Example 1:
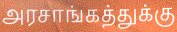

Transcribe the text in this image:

அரசாங்கத்துக்கு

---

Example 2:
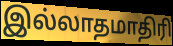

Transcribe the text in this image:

இல்லாதமாதிரி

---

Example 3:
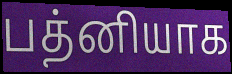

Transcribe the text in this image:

பத்னியாக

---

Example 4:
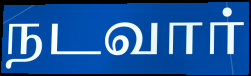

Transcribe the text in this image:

நடவார்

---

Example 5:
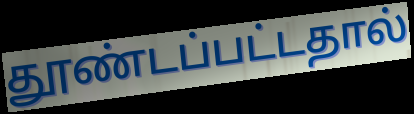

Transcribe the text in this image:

தூண்டப்பட்டதால்